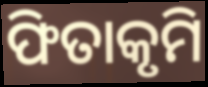
ଫିତାକୃମି